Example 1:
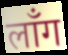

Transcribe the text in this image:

लाँग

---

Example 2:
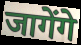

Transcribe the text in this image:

जागेंगे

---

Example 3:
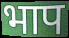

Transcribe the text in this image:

भाप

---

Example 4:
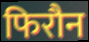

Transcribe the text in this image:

फिरौन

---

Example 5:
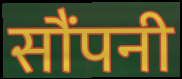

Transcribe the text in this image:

सौंपनी